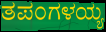
ತಪಂಗಳಯ್ಯ